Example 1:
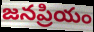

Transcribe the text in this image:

జనప్రియం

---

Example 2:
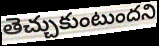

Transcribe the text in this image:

తెచ్చుకుంటుందని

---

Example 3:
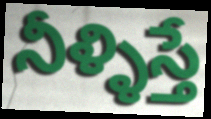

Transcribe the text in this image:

నీళ్ళిస్తే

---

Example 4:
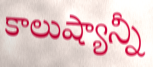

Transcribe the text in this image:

కాలుష్యాన్నీ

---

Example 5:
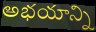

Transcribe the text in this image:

అభయాన్ని